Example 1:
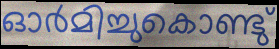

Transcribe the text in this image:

ഓർമിച്ചുകൊണ്ടു്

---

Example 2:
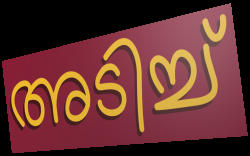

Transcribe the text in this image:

അടിച്ച്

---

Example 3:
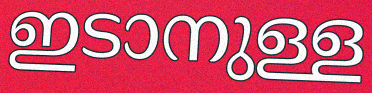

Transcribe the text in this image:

ഇടാനുള്ള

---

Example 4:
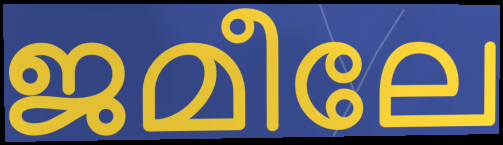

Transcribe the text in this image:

ജമീലേ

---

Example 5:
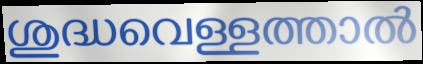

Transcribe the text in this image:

ശുദ്ധവെള്ളത്താൽ